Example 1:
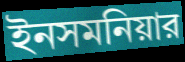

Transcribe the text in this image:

ইনসমনিয়ার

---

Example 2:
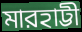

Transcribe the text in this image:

মারহাট্টী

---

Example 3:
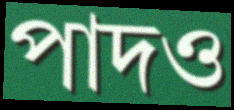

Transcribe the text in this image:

পাদও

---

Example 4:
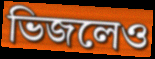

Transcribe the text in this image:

ভিজলেও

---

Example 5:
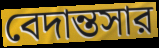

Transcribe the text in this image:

বেদান্তসার